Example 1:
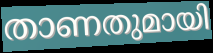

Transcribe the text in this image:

താണതുമായി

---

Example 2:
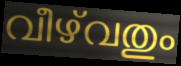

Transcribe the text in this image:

വീഴ്‌വതും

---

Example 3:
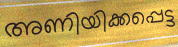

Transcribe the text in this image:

അണിയിക്കപ്പെട്ട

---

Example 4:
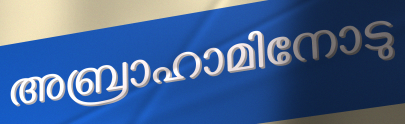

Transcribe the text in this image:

അബ്രാഹാമിനോടു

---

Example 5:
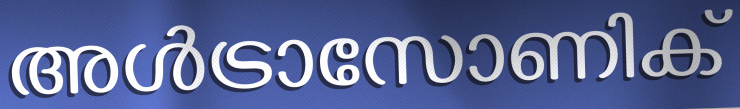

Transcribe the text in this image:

അൾട്രാസോണിക്